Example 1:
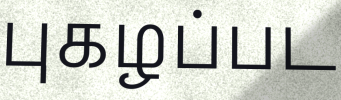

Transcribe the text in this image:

புகழப்பட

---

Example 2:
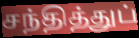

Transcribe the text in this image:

சந்தித்துப்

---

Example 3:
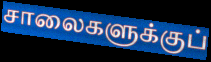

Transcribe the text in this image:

சாலைகளுக்குப்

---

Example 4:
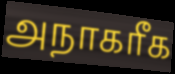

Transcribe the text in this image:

அநாகரீக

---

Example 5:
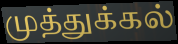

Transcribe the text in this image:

முத்துக்கல்